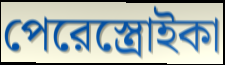
পেরেস্ত্রোইকা